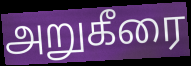
அறுகீரை